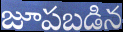
జూపబడిన